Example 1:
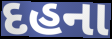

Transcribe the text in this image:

દહના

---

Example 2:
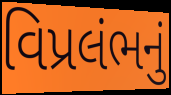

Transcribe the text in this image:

વિપ્રલંભનું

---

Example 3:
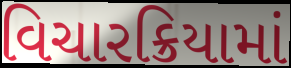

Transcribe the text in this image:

વિચારક્રિયામાં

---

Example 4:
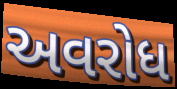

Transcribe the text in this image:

અવરોધ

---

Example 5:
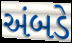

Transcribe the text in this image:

અંબડે